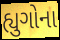
હ્યુગોના